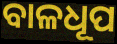
ବାଳଧୂପ